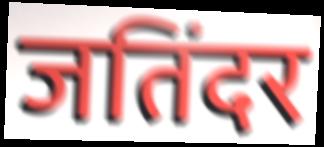
जतिंदर